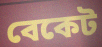
বেকেট